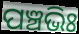
ପଞ୍ଚଭିଃ